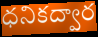
ధనికద్వార